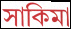
সাকিমা